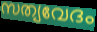
സത്യവേദം